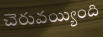
చెరువయ్యింది